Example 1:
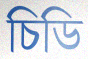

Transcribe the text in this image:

চিডি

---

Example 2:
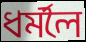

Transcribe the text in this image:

ধৰ্মলৈ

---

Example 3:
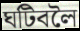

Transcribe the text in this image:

ঘটিবলৈ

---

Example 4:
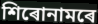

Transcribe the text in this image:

শিৰোনামৰে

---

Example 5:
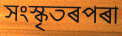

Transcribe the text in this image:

সংস্কৃতৰপৰা